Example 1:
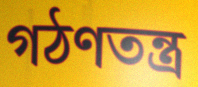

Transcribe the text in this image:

গঠণতন্ত্র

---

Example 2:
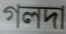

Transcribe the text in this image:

গলদা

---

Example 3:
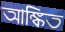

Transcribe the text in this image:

আঙ্কিত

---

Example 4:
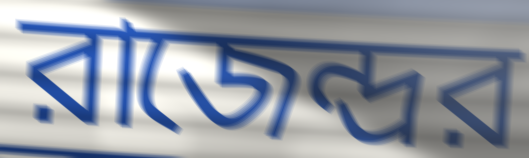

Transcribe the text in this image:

রাজেন্দ্রর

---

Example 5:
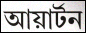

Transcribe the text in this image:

আয়ার্টন